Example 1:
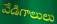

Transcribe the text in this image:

వేడిగాలులు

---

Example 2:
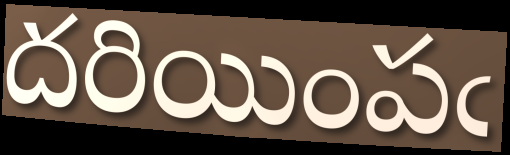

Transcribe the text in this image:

దరియింపఁ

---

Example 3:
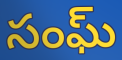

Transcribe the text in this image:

సంఘ్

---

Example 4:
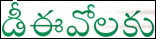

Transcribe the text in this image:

డీఈవోలకు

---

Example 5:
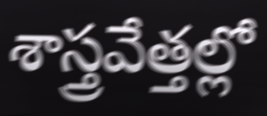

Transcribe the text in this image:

శాస్త్రవేత్తల్లో